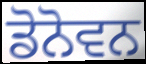
ਡੋਨੋਵਨ